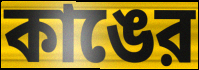
কাঙের